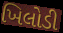
ખિલોડી